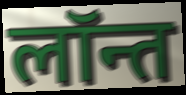
लॉन्त